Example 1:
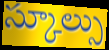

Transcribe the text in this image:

స్కూల్సు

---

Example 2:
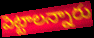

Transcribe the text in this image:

పెట్టాలన్నారు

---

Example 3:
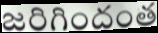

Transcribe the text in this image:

జరిగిందంత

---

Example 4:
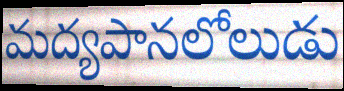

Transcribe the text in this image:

మద్యపానలోలుడు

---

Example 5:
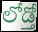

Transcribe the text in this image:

లోడ్తో